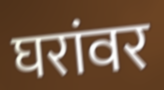
घरांवर